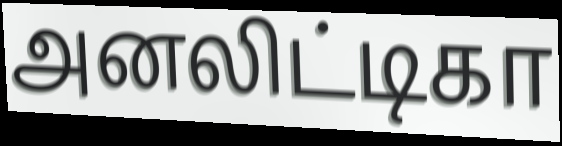
அனலிட்டிகா